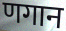
णगान